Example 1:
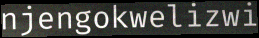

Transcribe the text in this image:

njengokwelizwi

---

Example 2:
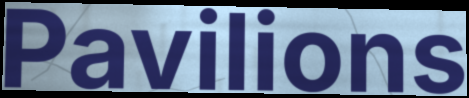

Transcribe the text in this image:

Pavilions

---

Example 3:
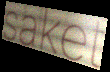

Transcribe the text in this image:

saket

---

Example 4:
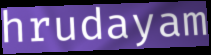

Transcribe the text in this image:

hrudayam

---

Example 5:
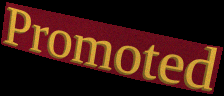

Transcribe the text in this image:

Promoted